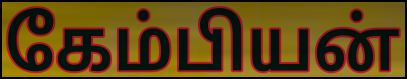
கேம்பியன்